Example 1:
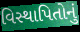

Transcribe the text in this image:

વિસ્થાપિતોનું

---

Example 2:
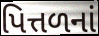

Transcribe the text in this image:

પિત્તળનાં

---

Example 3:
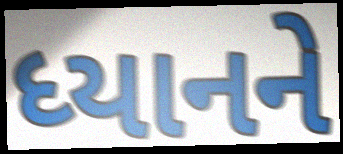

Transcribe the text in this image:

ધ્યાનને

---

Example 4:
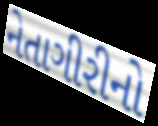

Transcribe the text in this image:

નેતાગીરીનો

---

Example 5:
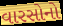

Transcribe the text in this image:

વારસોનો